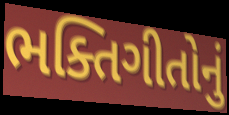
ભક્તિગીતોનું